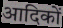
आदिकों